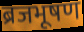
ब्रजभूषण